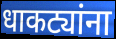
धाकट्यांना